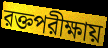
রক্তপরীক্ষায়